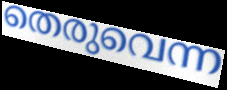
തെരുവെന്ന